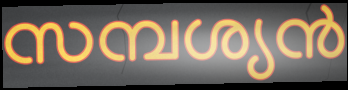
സമ്പശ്യൻ